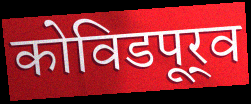
कोविडपूर्व